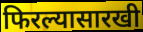
फिरल्यासारखी